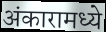
अंकारामध्ये